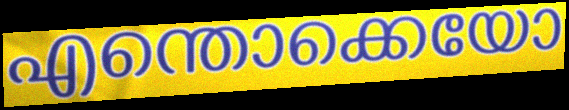
എന്തൊക്കെയോ